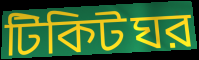
টিকিটঘর